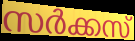
സർക്കസ്